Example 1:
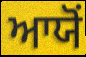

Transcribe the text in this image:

ਆਯੋਂ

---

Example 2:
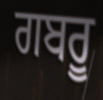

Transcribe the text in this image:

ਗਬਰੂ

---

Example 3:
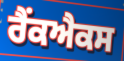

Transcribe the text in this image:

ਰੈਂਕਐਕਸ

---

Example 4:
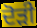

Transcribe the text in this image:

ਦੋੜੀ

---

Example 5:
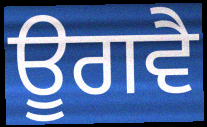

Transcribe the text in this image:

ਊਗਵੈ